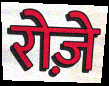
रोज़े